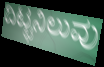
ದಿಟ್ಟನಿಲುವು